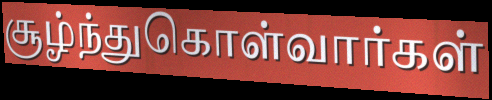
சூழ்ந்துகொள்வார்கள்